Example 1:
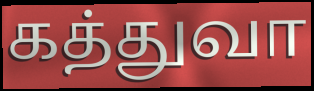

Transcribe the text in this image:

கத்துவா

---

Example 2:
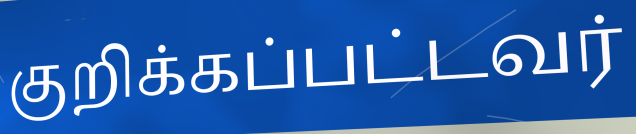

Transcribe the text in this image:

குறிக்கப்பட்டவர்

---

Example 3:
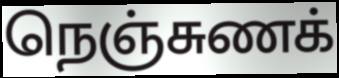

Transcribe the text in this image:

நெஞ்சுணக்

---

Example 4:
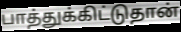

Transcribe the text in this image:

பாத்துக்கிட்டுதான்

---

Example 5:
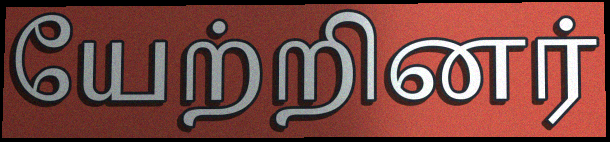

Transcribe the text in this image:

யேற்றினர்